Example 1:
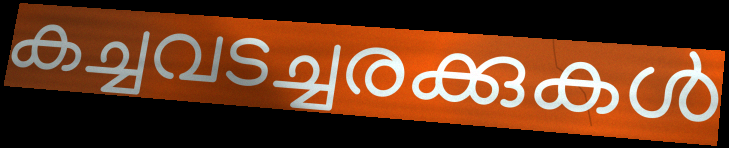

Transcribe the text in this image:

കച്ചവടച്ചരക്കുകൾ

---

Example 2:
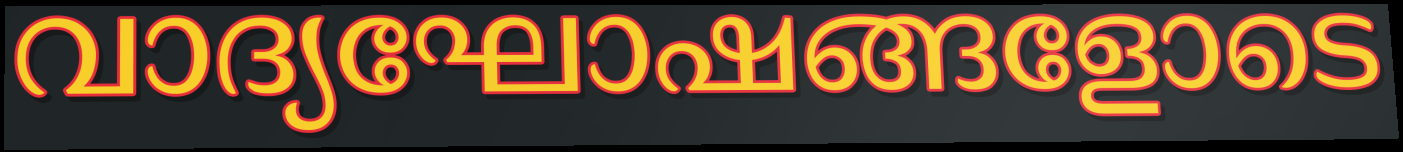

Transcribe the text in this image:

വാദ്യഘോഷങ്ങളോടെ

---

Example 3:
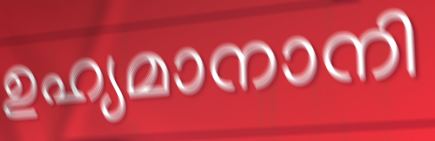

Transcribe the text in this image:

ഉഹ്യമാനാനി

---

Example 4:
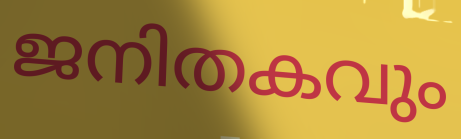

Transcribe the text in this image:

ജനിതകവും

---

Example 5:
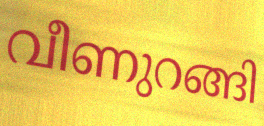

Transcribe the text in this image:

വീണുറങ്ങി